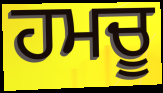
ਹਮਚੂ